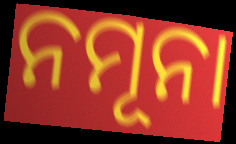
ନମୂନା